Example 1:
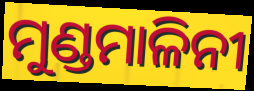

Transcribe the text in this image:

ମୁଣ୍ଡମାଳିନୀ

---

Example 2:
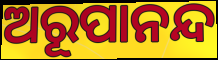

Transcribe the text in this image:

ଅରୂପାନନ୍ଦ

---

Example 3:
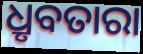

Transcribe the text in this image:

ଧ୍ରୃବତାରା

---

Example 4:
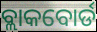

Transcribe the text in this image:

ବ୍ଲାକବୋର୍ଡ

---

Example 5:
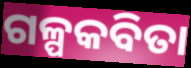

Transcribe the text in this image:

ଗଳ୍ପକବିତା